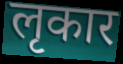
लृकार